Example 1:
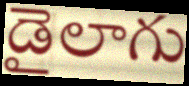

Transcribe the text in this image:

డైలాగు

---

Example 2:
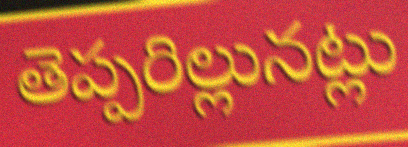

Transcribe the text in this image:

తెప్పరిల్లునట్లు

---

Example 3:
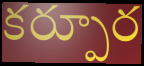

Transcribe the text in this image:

కర్పూర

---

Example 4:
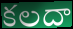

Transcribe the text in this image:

కలదా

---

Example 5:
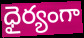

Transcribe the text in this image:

ధైర్యంగా